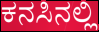
ಕನಸಿನಲ್ಲಿ